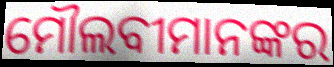
ମୌଲବୀମାନଙ୍କର